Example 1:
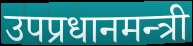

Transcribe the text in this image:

उपप्रधानमन्त्री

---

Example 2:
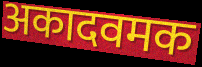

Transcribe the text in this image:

अकादवमक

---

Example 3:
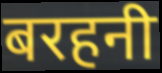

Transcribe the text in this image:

बरहनी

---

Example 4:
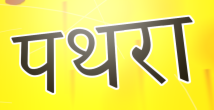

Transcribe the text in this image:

पथरा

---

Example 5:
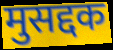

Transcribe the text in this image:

मुसद्दक